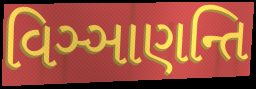
વિઞ્ઞાણન્તિ